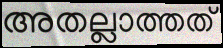
അതല്ലാത്തത്